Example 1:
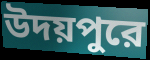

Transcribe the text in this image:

উদয়পুরে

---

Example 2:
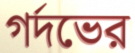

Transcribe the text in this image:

গর্দভের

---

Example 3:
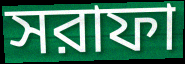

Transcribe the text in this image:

সরাফা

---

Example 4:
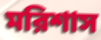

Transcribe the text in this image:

মরিশাস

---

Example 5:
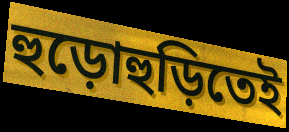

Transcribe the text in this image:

হুড়োহুড়িতেই